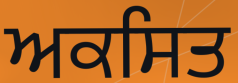
ਅਕਸਿਤ